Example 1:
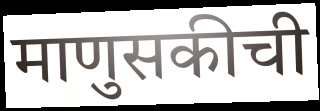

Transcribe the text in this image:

माणुसकीची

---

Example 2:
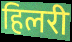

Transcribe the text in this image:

हिलरी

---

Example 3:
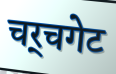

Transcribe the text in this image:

चर्चगेट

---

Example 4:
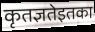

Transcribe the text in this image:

कृतज्ञतेइतका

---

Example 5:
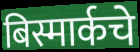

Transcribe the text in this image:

बिस्मार्कचे